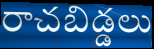
రాచబిడ్డలు